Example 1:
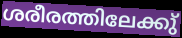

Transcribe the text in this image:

ശരീരത്തിലേക്കു്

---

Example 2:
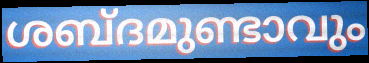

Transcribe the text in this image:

ശബ്ദമുണ്ടാവും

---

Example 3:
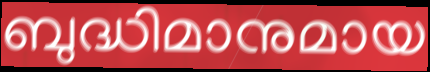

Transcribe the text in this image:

ബുദ്ധിമാനുമായ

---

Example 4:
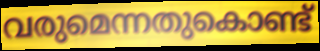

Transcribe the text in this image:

വരുമെന്നതുകൊണ്ട്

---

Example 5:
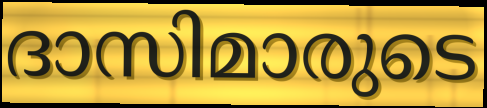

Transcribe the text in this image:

ദാസിമാരുടെ